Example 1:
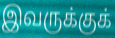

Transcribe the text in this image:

இவருக்குக்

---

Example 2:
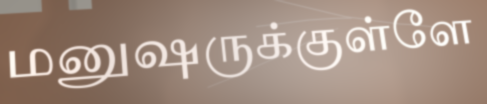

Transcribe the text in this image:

மனுஷருக்குள்ளே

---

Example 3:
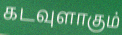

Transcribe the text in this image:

கடவுளாகும்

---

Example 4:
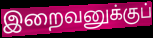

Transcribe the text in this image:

இறைவனுக்குப்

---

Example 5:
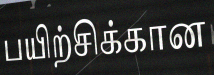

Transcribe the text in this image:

பயிற்சிக்கான